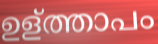
ഉള്ത്താപം